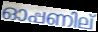
ഓപ്പണില്